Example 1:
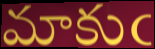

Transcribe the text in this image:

మాకుఁ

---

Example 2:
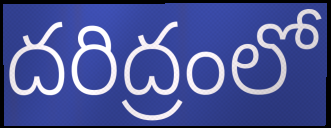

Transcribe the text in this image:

దరిద్రంలో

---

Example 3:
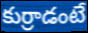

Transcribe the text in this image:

కుర్రాడంటే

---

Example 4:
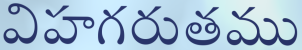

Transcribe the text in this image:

విహగరుతము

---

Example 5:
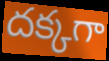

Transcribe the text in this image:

దక్కగా